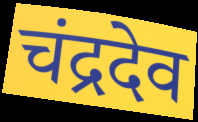
चंद्रदेव